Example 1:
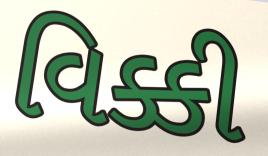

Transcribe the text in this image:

વિક્કી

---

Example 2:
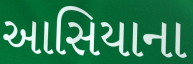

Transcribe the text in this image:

આસિયાના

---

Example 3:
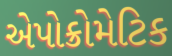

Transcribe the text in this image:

એપોક્રોમેટિક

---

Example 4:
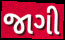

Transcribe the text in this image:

જાગી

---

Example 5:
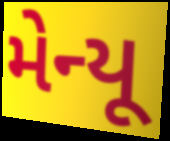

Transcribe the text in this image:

મેન્યૂ